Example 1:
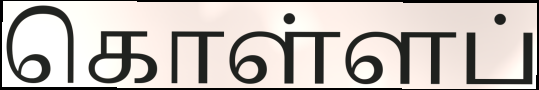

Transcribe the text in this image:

கொள்ளப்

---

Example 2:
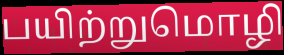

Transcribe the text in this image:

பயிற்றுமொழி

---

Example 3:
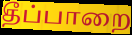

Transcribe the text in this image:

தீப்பாறை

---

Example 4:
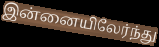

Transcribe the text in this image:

இன்னையிலேர்ந்து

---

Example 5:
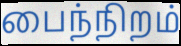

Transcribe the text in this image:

பைந்நிறம்